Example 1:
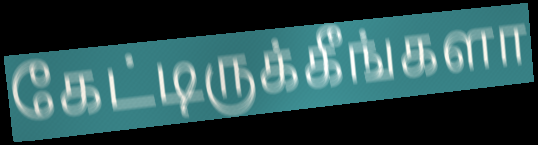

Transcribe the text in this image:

கேட்டிருக்கீங்களா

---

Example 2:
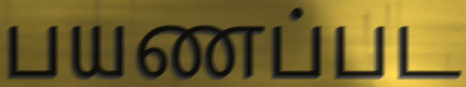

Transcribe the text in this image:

பயணப்பட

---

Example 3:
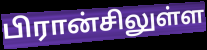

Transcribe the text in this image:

பிரான்சிலுள்ள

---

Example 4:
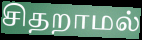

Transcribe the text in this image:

சிதறாமல்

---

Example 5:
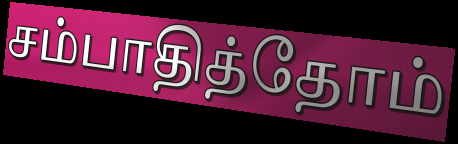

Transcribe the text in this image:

சம்பாதித்தோம்